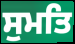
ਸੁਮਤਿ